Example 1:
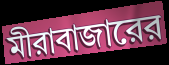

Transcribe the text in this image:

মীরাবাজারের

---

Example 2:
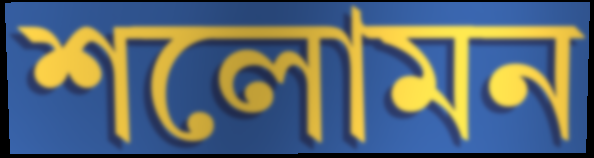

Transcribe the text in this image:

শলোমন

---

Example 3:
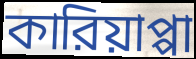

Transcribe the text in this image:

কারিয়াপ্পা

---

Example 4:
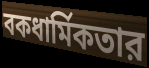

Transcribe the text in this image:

বকধার্মিকতার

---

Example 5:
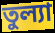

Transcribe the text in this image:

তুল্যা